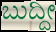
ಬುದ್ದೀ